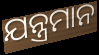
ଯନ୍ତ୍ରମାନ